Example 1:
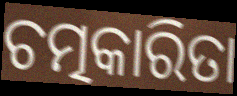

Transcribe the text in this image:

ଚତ୍ମକାରିତା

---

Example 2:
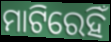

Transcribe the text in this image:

ମାଟିରେହିଁ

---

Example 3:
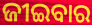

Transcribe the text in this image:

ଜୀଇବାର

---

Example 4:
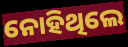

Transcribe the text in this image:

ନୋହିଥିଲେ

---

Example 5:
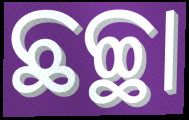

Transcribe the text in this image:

ଛଚ୍ଛା